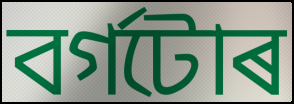
বৰ্গটোৰ